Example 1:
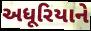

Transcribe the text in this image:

અધૂરિયાને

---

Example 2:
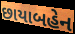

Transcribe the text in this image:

છાયાબહેન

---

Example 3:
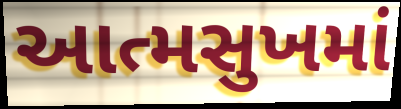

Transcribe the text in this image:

આત્મસુખમાં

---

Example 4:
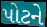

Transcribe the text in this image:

પોટને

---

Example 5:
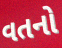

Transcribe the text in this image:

વતનો